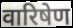
वारिषेण